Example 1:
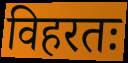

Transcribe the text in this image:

विहरतः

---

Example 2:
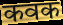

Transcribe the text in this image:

कवक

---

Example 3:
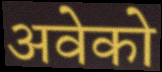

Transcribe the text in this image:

अवेको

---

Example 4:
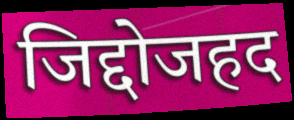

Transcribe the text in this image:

जिद्दोजहद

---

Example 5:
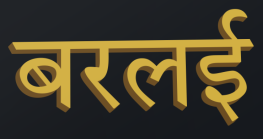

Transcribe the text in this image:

बरलई